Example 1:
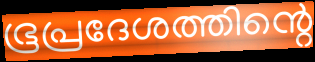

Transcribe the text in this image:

ഭൂപ്രദേശത്തിന്റെ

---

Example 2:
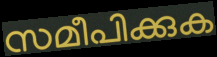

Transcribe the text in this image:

സമീപിക്കുക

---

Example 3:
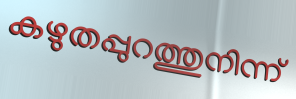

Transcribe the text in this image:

കഴുതപ്പുറത്തുനിന്ന്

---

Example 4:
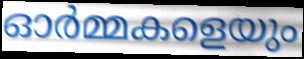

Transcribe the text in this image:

ഓർമ്മകളെയും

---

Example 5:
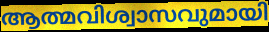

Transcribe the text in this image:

ആത്മവിശ്വാസവുമായി